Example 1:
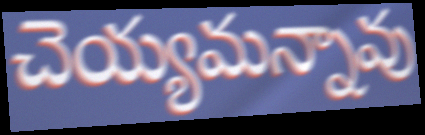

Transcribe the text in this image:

చెయ్యమన్నావు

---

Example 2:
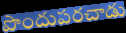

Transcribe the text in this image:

పొందుపరచాడు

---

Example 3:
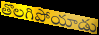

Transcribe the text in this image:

తొలగిపోయాడు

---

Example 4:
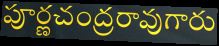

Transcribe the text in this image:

పూర్ణచంద్రరావుగారు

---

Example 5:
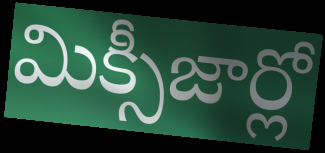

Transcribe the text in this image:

మిక్సీజార్లో